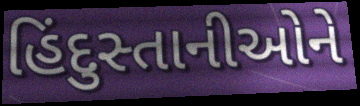
હિંદુસ્તાનીઓને